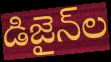
డిజైన్‌ల